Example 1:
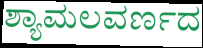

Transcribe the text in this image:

ಶ್ಯಾಮಲವರ್ಣದ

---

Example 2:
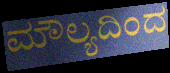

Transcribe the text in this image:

ಮೌಲ್ಯದಿಂದ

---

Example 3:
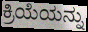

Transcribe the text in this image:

ಕ್ರಿಯೆಯನ್ನು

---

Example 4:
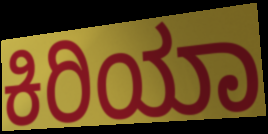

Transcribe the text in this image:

ಕಿರಿಯಾ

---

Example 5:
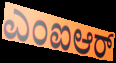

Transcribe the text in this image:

ಎಂಐಆರ್